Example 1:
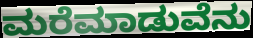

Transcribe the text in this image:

ಮರೆಮಾಡುವೆನು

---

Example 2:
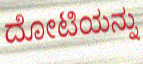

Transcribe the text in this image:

ದೋಟಿಯನ್ನು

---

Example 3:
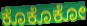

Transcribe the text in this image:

ಕೊಕೊಕೋ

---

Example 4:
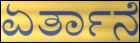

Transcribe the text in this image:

ಏರ್ತಾನೆ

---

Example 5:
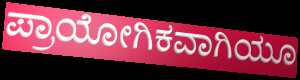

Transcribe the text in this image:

ಪ್ರಾಯೋಗಿಕವಾಗಿಯೂ